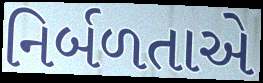
નિર્બળતાએ